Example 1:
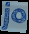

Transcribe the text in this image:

jo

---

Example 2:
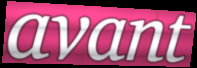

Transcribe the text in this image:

avant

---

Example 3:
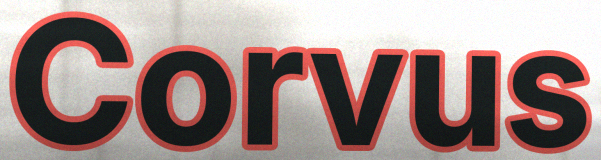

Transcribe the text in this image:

Corvus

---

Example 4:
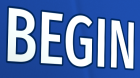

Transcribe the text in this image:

BEGIN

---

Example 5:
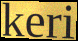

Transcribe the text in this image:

keri